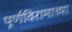
पूर्णविरामाच्या